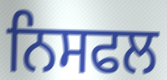
ਨਿਸਫਲ